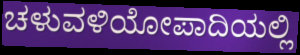
ಚಳುವಳಿಯೋಪಾದಿಯಲ್ಲಿ